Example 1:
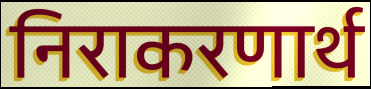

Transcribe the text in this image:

निराकरणार्थ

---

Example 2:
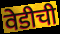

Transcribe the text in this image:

वेडीची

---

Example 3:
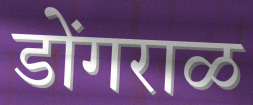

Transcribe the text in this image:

डोंगराळ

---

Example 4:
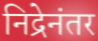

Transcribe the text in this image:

निद्रेनंतर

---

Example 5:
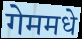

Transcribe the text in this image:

गेममधे